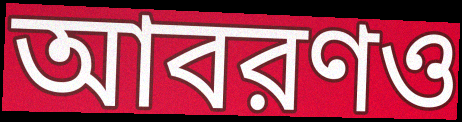
আবরণও